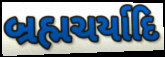
બ્રહ્મચર્યાદિ